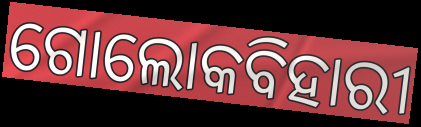
ଗୋଲୋକବିହାରୀ